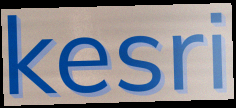
kesri